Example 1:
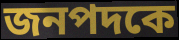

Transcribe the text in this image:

জনপদকে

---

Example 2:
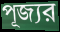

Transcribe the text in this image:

পূজ্যর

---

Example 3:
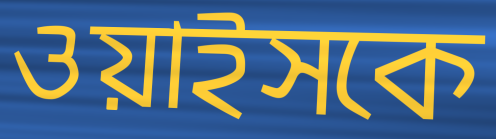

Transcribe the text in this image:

ওয়াইসকে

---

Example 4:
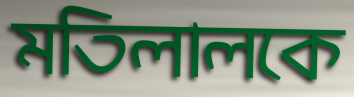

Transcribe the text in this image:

মতিলালকে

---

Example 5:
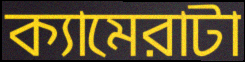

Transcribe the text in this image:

ক্যামেরাটা